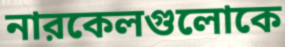
নারকেলগুলোকে